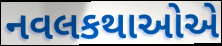
નવલકથાઓએ